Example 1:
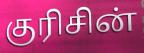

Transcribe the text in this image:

குரிசின்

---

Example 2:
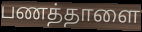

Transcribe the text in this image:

பணத்தாளை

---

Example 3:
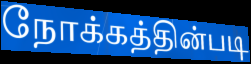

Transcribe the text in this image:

நோக்கத்தின்படி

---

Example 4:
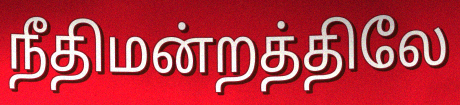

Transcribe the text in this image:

நீதிமன்றத்திலே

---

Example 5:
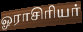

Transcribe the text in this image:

ஓராசிரியர்